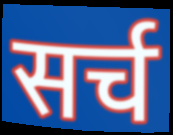
सर्च